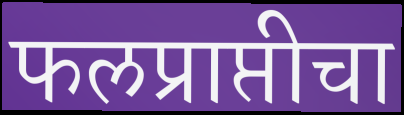
फलप्राप्तीचा